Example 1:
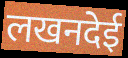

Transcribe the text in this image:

लखनदेई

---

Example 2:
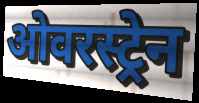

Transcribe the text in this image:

ओवरस्ट्रेन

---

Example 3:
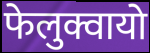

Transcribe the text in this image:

फेलुक्वायो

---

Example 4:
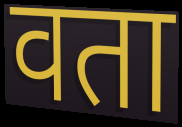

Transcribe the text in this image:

वता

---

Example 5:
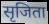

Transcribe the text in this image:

सृजिता